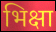
भिक्षा